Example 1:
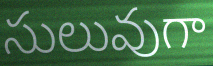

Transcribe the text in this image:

సులువుగా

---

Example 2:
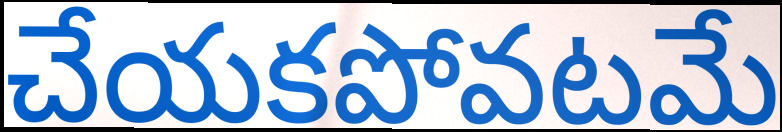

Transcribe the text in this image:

చేయకపోవటమే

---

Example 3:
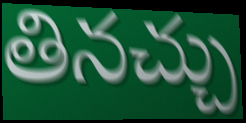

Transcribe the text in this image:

తినచ్చు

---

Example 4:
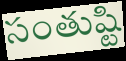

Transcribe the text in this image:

సంతుష్టి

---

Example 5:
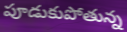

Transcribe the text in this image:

పూడుకుపోతున్న